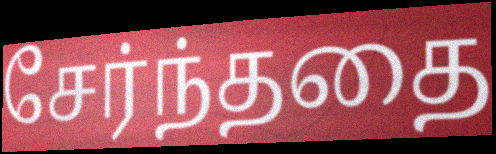
சேர்ந்ததை